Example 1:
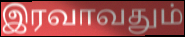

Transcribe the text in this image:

இரவாவதும்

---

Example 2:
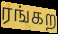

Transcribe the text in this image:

ரங்கற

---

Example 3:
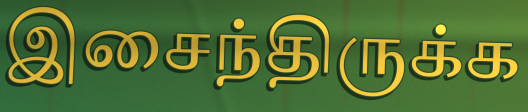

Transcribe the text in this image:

இசைந்திருக்க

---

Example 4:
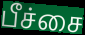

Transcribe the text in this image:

பீச்சை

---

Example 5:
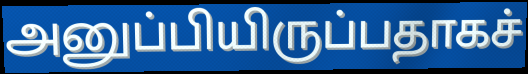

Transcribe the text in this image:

அனுப்பியிருப்பதாகச்